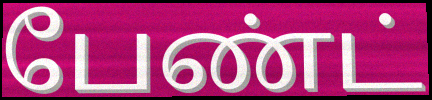
பேண்ட்